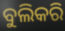
ବୁଲିକରି